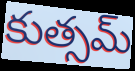
కుత్సమ్